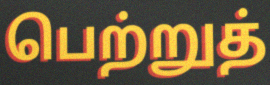
பெற்றுத்